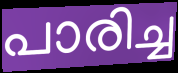
പാരിച്ച